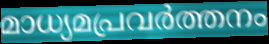
മാധ്യമപ്രവർത്തനം